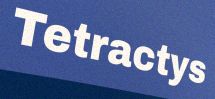
Tetractys